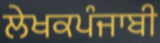
ਲੇਖਕਪੰਜਾਬੀ